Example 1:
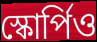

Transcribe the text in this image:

স্কোর্পিও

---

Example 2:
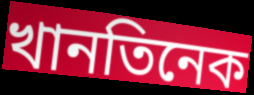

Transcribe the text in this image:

খানতিনেক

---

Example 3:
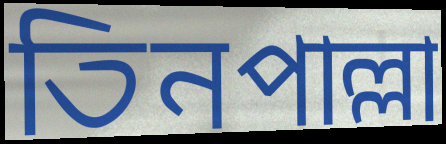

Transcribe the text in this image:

তিনপাল্লা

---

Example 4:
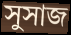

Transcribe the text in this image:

সুসাজ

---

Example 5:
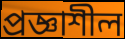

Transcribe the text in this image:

প্রজ্ঞাশীল